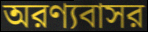
অরণ্যবাসর